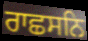
ਰਾਛਸਨਿ